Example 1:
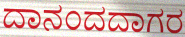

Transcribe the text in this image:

ದಾನಂದದಾಗರ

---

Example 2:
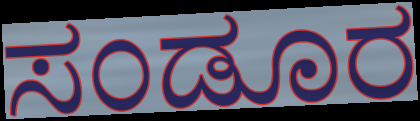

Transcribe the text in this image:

ಸಂಡೂರ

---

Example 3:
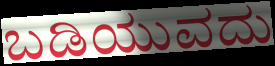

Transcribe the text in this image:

ಬಡಿಯುವದು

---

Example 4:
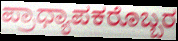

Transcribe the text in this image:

ಪ್ರಾಧ್ಯಾಪಕರೊಬ್ಬರ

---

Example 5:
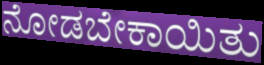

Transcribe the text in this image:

ನೋಡಬೇಕಾಯಿತು